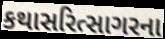
કથાસરિત્સાગરના